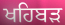
ਖਹਿਬੜ